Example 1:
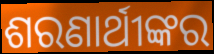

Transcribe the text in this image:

ଶରଣାର୍ଥୀଙ୍କର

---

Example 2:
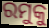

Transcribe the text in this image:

ରମୁକୁ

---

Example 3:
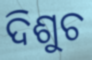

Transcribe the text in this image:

ଦିଶୁଚ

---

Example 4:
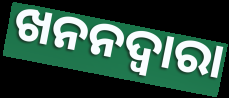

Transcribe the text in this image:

ଖନନଦ୍ୱାରା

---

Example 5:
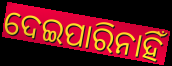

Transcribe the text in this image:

ଦେଇପାରିନାହିଁ